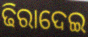
ଢିରାଦେଇ